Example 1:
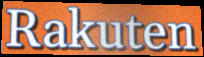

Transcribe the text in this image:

Rakuten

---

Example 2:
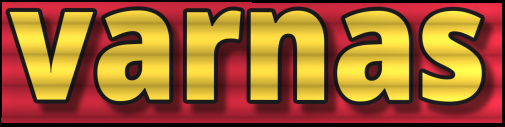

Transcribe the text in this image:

varnas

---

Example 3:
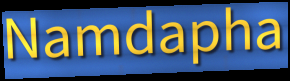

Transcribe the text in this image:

Namdapha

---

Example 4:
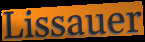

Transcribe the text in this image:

Lissauer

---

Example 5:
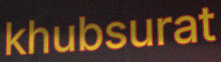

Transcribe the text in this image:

khubsurat